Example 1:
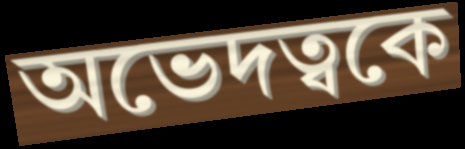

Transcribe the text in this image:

অভেদত্বকে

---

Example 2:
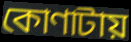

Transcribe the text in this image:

কোণাটায়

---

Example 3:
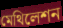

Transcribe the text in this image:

মেথিলেশন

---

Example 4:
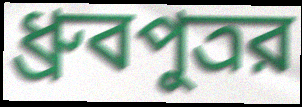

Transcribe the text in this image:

ধ্রুবপুত্রর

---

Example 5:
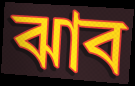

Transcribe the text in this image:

ঝাব